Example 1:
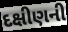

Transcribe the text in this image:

દક્ષીણની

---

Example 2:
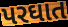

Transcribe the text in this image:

પરઘાત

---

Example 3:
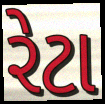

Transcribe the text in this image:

રેટા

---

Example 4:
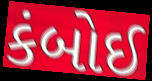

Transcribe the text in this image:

કંબોઈ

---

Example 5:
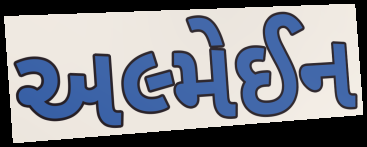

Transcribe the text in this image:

અલ્મેઈન